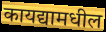
कायद्यामधील